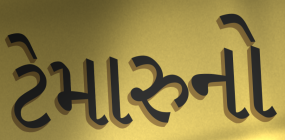
ટેમારુનો